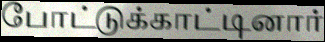
போட்டுக்காட்டினார்